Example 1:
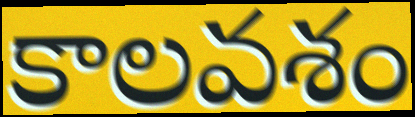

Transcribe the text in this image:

కాలవశం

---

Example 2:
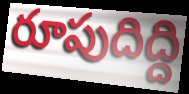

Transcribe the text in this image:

రూపుదిద్ది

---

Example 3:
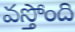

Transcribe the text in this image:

వస్తోంది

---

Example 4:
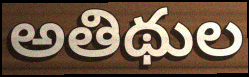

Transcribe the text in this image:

అతిథుల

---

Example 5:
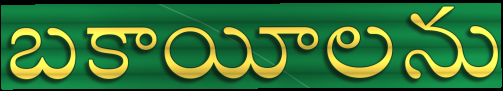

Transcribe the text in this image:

బకాయీలను